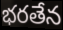
భరతేన